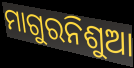
ମାଗୁରନିଶୁଆ